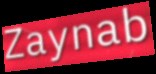
Zaynab